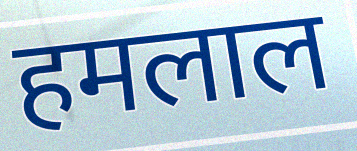
हमलाल